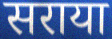
सराया